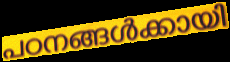
പഠനങ്ങൾക്കായി